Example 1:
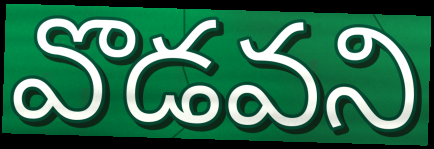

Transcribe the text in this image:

వొడవని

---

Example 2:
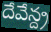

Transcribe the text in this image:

దేవేన్ద్ర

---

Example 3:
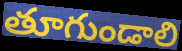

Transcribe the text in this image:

తూగుండాలి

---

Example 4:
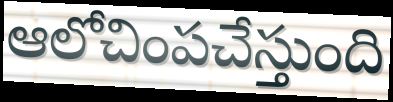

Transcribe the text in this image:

ఆలోచింపచేస్తుంది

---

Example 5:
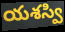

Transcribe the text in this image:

యశస్వి